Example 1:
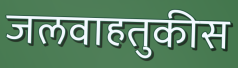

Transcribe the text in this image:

जलवाहतुकीस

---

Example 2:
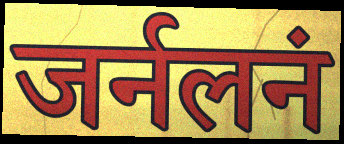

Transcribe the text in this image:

जर्नलनं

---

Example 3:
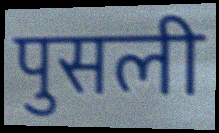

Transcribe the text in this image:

पुसली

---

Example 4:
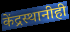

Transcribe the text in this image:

केंद्रस्थानीही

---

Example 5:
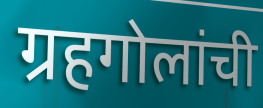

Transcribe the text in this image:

ग्रहगोलांची